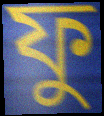
ফু